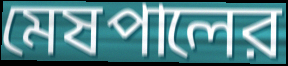
মেষপালের